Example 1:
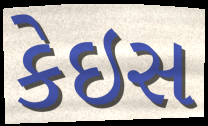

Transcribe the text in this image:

કેઇસ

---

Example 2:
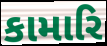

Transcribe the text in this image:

કામારિ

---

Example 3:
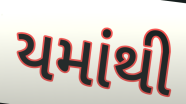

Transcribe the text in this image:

યમાંથી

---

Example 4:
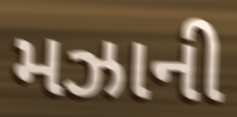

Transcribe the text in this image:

મઝાની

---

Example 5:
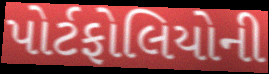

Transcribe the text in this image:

પોર્ટફોલિયોની